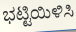
ಭಟ್ಟಿಯಿಳಿಸಿ